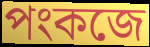
পংকজে